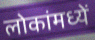
लोकांमध्यें